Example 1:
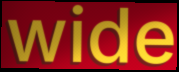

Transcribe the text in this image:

wide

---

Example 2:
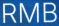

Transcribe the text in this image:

RMB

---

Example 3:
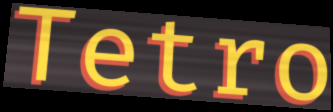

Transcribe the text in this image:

Tetro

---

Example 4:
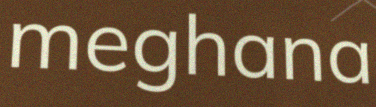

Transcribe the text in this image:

meghana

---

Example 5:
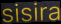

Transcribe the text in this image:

sisira